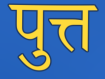
पुत्त